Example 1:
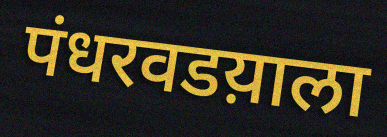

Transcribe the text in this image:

पंधरवडय़ाला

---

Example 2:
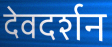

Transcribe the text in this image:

देवदर्शन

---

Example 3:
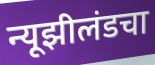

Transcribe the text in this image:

न्यूझीलंडचा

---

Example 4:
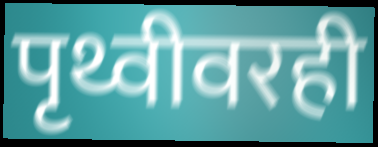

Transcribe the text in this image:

पृथ्वीवरही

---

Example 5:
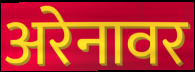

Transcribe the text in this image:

अरेनावर